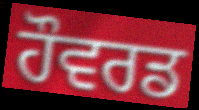
ਹੌਵਰਡ